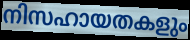
നിസഹായതകളും